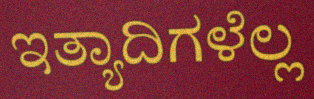
ಇತ್ಯಾದಿಗಳೆಲ್ಲ